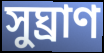
সুঘ্রাণ